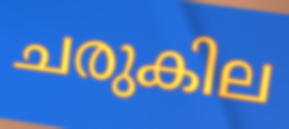
ചരുകില